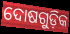
ଦୋଷଗୁଡ଼ିକ